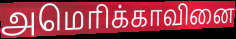
அமெரிக்காவினை